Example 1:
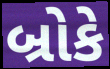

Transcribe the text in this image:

બ્રોકે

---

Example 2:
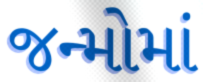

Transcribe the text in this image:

જન્મોમાં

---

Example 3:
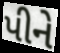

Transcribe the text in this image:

પીને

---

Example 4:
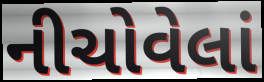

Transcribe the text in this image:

નીચોવેલાં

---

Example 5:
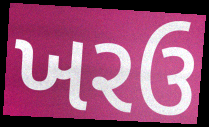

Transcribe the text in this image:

ખરઉ